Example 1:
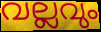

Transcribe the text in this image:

വല്ലവും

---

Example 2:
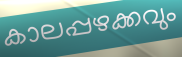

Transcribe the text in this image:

കാലപ്പഴക്കവും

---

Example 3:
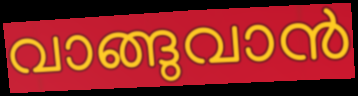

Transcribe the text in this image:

വാങ്ങുവാൻ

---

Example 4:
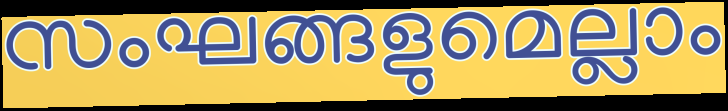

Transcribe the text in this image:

സംഘങ്ങളുമെല്ലാം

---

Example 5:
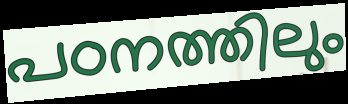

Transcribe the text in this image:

പഠനത്തിലും